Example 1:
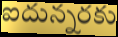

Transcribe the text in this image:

ఐదున్నరకు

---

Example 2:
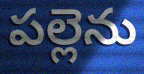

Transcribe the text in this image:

పల్లెను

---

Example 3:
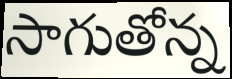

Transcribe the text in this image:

సాగుతోన్న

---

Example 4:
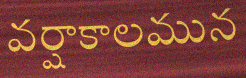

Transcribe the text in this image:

వర్షాకాలమున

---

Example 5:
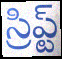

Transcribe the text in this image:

స్రిప్ట్